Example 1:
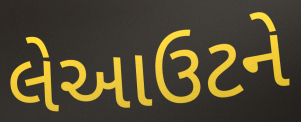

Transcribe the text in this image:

લેઆઉટને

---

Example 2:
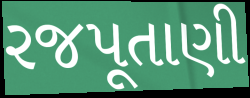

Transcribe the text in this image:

રજપૂતાણી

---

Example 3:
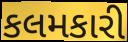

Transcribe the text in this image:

કલમકારી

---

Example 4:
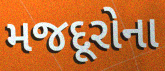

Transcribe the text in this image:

મજદૂરોના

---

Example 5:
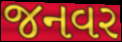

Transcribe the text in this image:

જનવર